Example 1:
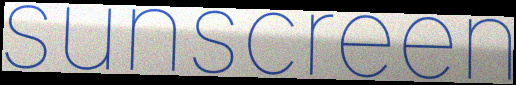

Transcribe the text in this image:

sunscreen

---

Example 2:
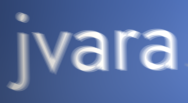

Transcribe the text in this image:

jvara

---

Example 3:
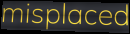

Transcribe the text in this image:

misplaced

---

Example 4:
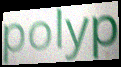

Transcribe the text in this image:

polyp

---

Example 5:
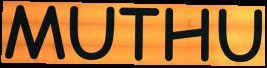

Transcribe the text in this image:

MUTHU